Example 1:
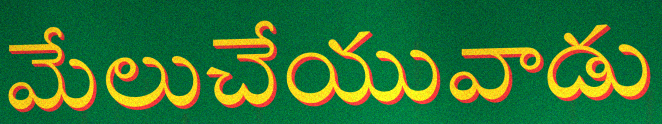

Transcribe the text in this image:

మేలుచేయువాడు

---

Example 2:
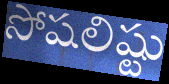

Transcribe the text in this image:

సోషలిష్టు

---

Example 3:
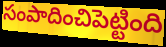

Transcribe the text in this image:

సంపాదించిపెట్టింది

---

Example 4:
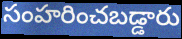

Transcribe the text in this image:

సంహరించబడ్డారు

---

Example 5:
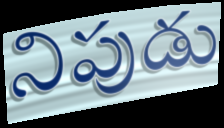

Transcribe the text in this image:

నిపుడు